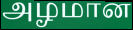
அழமான